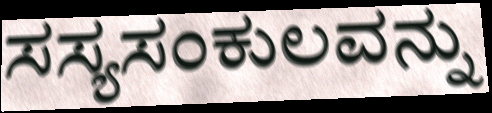
ಸಸ್ಯಸಂಕುಲವನ್ನು